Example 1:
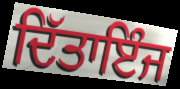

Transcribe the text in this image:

ਦਿੱਤਾਇੰਜ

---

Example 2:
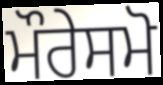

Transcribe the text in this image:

ਮੌਰੇਸਮੋ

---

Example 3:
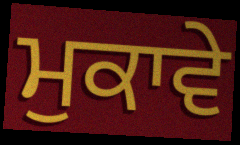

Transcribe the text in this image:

ਮੁਕਾਵੇ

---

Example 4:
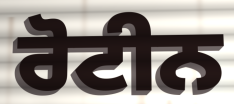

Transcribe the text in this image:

ਰੋਟੀਨ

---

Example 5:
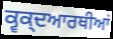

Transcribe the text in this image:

ਕ੍ਵਕ੍ਦਆਰਥੀਆਂ